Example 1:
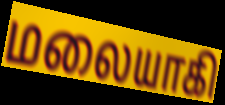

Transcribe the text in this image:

மலையாகி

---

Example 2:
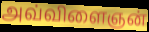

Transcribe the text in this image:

அவ்விளைஞன்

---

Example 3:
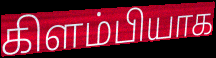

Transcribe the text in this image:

கிளம்பியாக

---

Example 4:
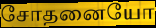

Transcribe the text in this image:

சோதனையோ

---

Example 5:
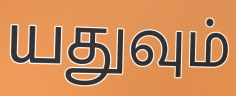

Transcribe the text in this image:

யதுவும்